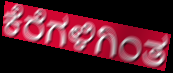
ಕೆರೆಗಳಿಗಿಂತ